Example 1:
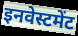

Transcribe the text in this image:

इनवेस्टमेंट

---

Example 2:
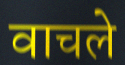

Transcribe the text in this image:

वाचले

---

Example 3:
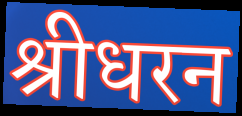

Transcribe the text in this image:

श्रीधरन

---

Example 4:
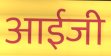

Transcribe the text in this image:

आईजी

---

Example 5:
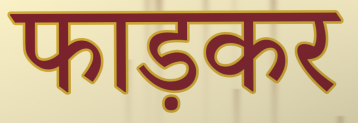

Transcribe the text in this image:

फाड़कर